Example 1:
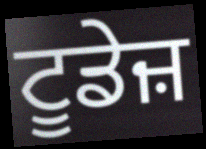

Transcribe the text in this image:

ਟੂਡੇਜ਼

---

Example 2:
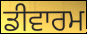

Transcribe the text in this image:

ਡੀਵਾਰਮ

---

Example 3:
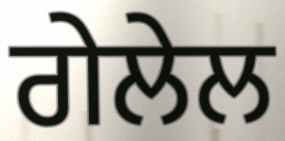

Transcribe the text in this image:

ਗੇਲੇਲ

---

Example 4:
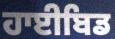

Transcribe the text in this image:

ਹਾਈਬਿਡ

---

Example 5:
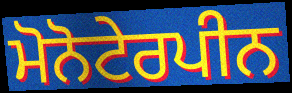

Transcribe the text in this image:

ਮੋਨੋਟੇਰਪੀਨ